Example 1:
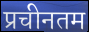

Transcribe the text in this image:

प्रचीनतम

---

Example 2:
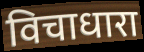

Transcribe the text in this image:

विचाधारा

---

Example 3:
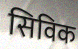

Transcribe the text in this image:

सिविक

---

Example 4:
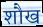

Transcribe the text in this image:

शौख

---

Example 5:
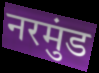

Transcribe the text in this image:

नरमुंड